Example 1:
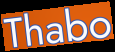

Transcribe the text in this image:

Thabo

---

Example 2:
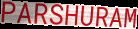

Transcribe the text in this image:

PARSHURAM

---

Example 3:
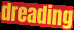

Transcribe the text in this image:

dreading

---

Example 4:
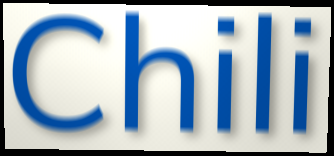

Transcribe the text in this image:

Chili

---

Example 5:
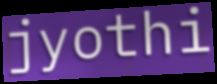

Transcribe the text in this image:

jyothi